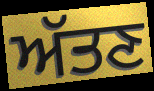
ਅੱਤਣ